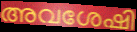
അവശേഷി